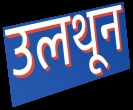
उलथून